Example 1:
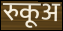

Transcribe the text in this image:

रुकूअ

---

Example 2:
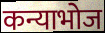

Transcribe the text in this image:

कन्याभोज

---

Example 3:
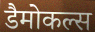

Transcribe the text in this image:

डैमोकल्स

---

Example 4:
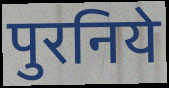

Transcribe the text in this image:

पुरनिये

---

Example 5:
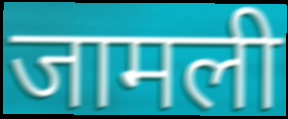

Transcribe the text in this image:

जामली